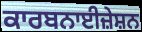
ਕਾਰਬਨਾਈਜ਼ੇਸ਼ਨ